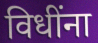
विधींना